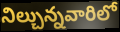
నిల్చున్నవారిలో